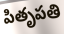
పితృపతి